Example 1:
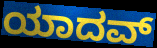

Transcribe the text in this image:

ಯಾದವ್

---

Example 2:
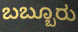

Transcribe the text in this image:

ಬಬ್ಬೂರು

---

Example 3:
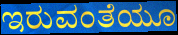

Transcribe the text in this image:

ಇರುವಂತೆಯೂ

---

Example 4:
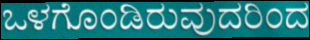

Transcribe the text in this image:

ಒಳಗೊಂಡಿರುವುದರಿಂದ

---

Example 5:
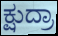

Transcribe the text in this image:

ಕ್ಷುದ್ರಾ